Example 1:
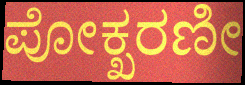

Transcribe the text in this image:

ಪೋಕ್ಖರಣೀ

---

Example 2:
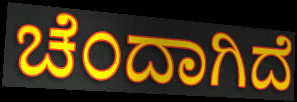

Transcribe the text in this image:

ಚೆಂದಾಗಿದೆ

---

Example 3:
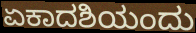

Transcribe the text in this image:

ಏಕಾದಶಿಯಂದು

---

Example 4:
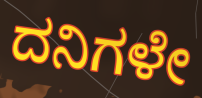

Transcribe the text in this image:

ದನಿಗಳೇ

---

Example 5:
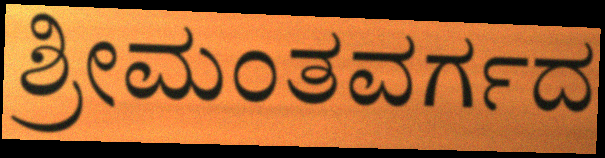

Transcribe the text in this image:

ಶ್ರೀಮಂತವರ್ಗದ